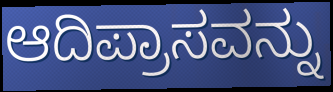
ಆದಿಪ್ರಾಸವನ್ನು